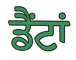
ਡੈਂਟਾਂ